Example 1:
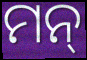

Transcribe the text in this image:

ମନ୍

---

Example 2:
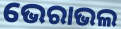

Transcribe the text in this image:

ଭେରାଭଲ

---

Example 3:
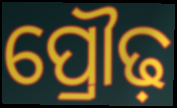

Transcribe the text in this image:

ପ୍ରୌଢ଼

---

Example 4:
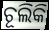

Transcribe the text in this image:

ଚୂଲିକି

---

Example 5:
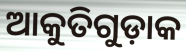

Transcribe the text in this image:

ଆକୁତିଗୁଡ଼ାକ